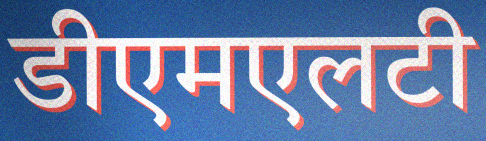
डीएमएलटी